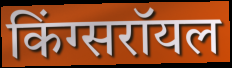
किंग्सरॉयल